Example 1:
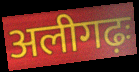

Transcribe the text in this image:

अलीगढ़ः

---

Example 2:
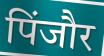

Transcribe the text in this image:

पिंजौर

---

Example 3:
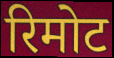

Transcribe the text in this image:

रिमोट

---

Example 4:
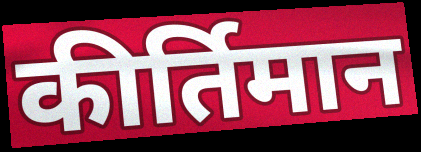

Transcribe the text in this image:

कीर्तिमान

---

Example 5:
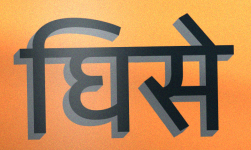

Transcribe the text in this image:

घिसे